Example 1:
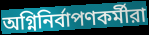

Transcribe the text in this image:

অগ্নিনির্বাপণকর্মীরা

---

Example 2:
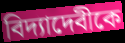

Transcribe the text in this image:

বিদ্যাদেবীকে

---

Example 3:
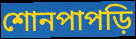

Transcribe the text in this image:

শোনপাপড়ি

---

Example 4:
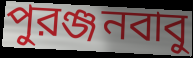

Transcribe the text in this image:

পুরঞ্জনবাবু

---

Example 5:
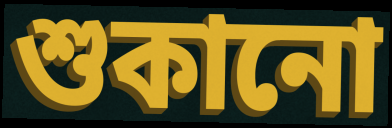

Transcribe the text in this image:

শুকানো